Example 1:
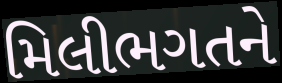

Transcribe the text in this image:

મિલીભગતને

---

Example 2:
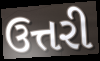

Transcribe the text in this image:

ઉત્તરી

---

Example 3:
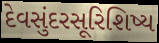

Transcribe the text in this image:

દેવસુંદરસૂરિશિષ્ય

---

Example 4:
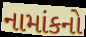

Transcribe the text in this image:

નામાંકનો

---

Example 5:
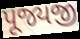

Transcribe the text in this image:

પૂજ્યજી